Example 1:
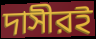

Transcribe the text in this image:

দাসীরই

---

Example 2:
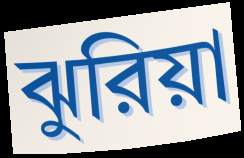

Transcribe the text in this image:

ঝুরিয়া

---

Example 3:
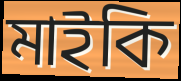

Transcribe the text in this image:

মাইকি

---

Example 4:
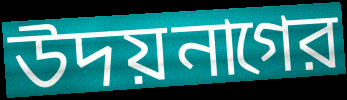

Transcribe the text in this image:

উদয়নাগের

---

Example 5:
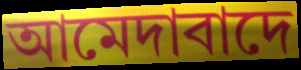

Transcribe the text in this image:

আমেদাবাদে